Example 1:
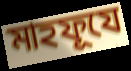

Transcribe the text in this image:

মাহফূযে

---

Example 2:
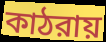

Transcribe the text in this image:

কাঠরায়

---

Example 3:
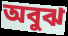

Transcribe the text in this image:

অবুঝ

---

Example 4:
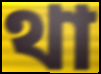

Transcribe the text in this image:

থা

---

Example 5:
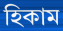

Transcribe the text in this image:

হিকাম